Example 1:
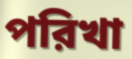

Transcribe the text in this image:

পরিখা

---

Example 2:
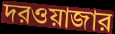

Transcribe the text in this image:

দরওয়াজার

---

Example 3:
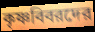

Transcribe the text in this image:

কৃষ্ণবিবরদের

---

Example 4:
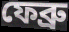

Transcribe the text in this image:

ফেব্রু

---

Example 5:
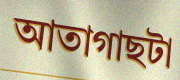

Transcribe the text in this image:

আতাগাছটা